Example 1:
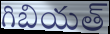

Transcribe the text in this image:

గిబియత్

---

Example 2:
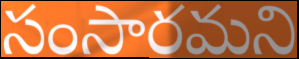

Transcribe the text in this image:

సంసారమని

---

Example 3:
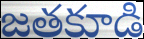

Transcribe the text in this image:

జతకూడి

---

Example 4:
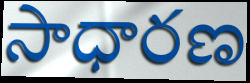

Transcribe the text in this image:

సాధారణ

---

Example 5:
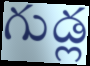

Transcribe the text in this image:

గుడ్ల